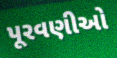
પૂરવણીઓ